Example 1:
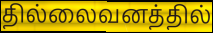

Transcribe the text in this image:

தில்லைவனத்தில்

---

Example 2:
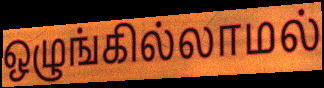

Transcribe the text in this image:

ஒழுங்கில்லாமல்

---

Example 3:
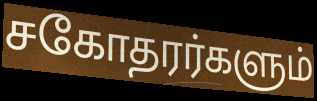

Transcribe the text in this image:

சகோதரர்களும்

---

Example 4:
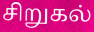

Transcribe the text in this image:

சிறுகல்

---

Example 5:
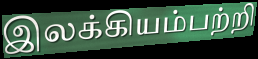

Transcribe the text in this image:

இலக்கியம்பற்றி